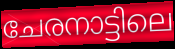
ചേരനാട്ടിലെ